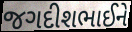
જગદીશભાઈને